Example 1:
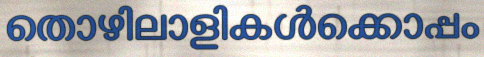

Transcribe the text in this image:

തൊഴിലാളികൾക്കൊപ്പം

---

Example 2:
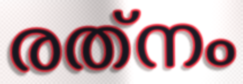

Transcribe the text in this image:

രത്‌നം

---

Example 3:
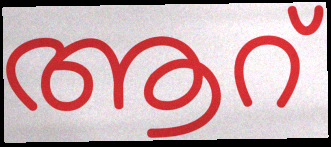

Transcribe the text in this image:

ആറ്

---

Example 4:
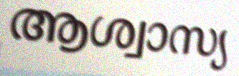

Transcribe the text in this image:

ആശ്വാസ്യ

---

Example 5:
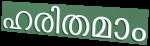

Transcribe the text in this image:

ഹരിതമാം